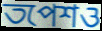
তপেশও